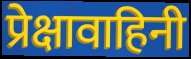
प्रेक्षावाहिनी